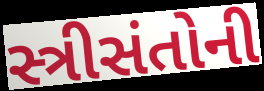
સ્ત્રીસંતોની